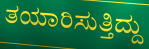
ತಯಾರಿಸುತ್ತಿದ್ದು